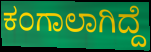
ಕಂಗಾಲಾಗಿದ್ದೆ